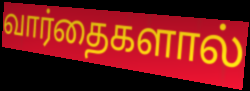
வார்தைகளால்